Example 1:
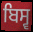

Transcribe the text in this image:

ਬਿਸ੍ਵ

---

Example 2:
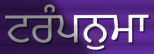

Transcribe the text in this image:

ਟਰੰਪਨੁਮਾ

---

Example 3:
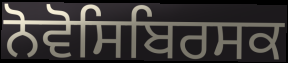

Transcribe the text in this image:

ਨੋਵੋਸਿਬਿਰਸਕ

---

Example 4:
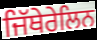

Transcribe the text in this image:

ਜਿੱਥੇਰੇਲਿਨ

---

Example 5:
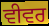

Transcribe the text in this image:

ਵੀਵਰ